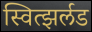
स्वित्झर्लड